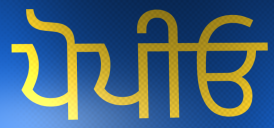
ਪੋਪੀਓ